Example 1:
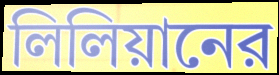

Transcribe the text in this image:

লিলিয়ানের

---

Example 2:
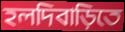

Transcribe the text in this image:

হলদিবাড়িতে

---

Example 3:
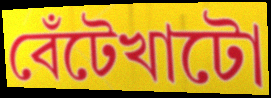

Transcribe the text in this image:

বেঁটেখাটো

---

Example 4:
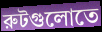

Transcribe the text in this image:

রুটগুলোতে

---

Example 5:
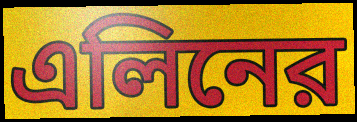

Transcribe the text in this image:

এলিনের